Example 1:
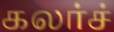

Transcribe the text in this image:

கலர்ச்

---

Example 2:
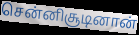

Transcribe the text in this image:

சென்னிசூடினான்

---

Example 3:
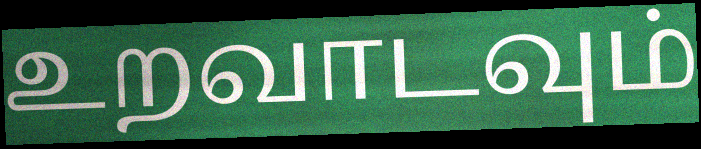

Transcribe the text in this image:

உறவாடவும்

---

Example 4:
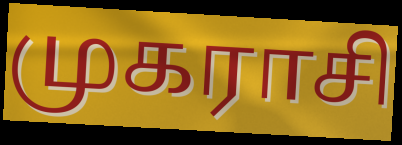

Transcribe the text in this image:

முகராசி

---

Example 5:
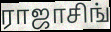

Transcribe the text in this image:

ராஜாசிங்